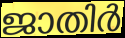
ജാതിർ